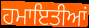
ਹਮਾਇਤੀਆਂ